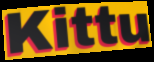
Kittu